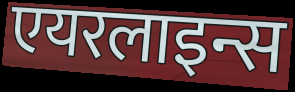
एयरलाइन्स